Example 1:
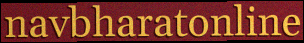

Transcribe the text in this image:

navbharatonline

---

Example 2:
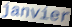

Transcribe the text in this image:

janvier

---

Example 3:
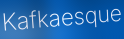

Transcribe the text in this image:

Kafkaesque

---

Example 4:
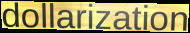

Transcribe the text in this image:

dollarization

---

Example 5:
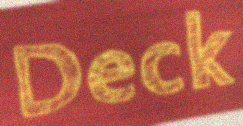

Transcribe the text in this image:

Deck